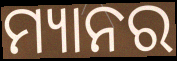
ମ୍ୟାନର